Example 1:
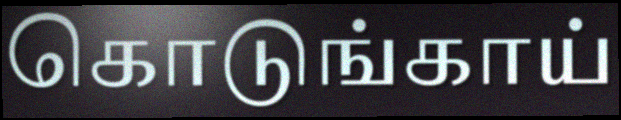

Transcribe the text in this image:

கொடுங்காய்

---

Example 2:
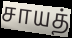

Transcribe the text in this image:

சாயத்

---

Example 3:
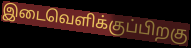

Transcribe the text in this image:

இடைவெளிக்குப்பிறகு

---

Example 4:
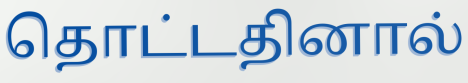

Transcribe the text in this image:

தொட்டதினால்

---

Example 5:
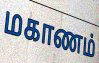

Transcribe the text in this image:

மகாணம்